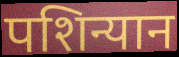
पशिन्यान